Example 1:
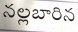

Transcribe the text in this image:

నల్లబారిన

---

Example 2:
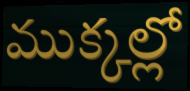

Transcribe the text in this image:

ముక్కల్లో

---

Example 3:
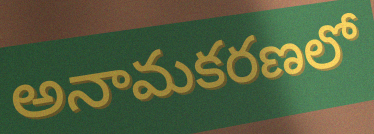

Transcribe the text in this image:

అనామకరణలో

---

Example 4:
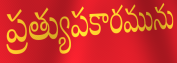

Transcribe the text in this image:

ప్రత్యుపకారమును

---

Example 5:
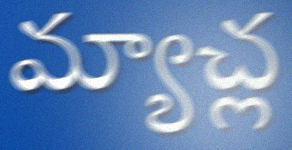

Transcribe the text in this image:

మ్యాచ్ల